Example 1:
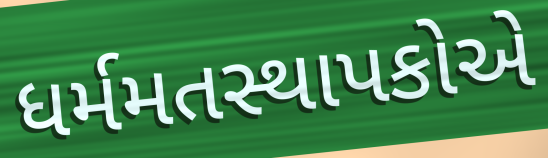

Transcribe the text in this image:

ધર્મમતસ્થાપકોએ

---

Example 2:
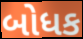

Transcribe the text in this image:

બોધક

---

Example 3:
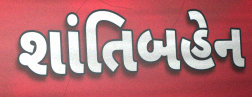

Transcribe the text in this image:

શાંતિબહેન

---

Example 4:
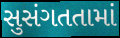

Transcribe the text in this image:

સુસંગતતામાં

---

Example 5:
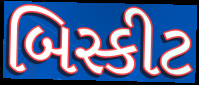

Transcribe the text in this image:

બિસ્કીટ